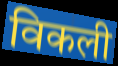
विकली